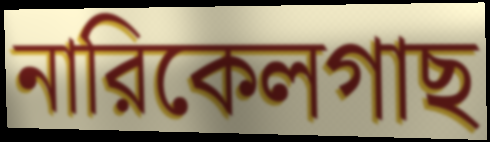
নারিকেলগাছ